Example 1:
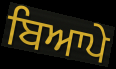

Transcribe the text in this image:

ਬਿਆਪੇ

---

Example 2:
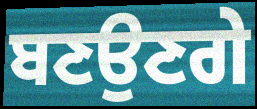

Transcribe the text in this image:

ਬਣਉਣਗੇ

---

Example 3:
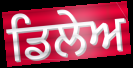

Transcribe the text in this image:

ਡਿਲੇਅ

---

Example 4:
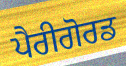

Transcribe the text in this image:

ਪੈਰੀਗੋਰਡ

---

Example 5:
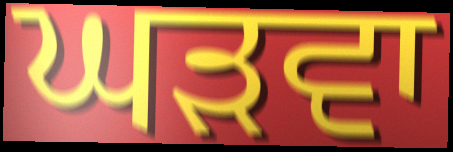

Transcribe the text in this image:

ਘੜਵਾ